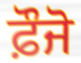
ਫ਼ੌਜੋ